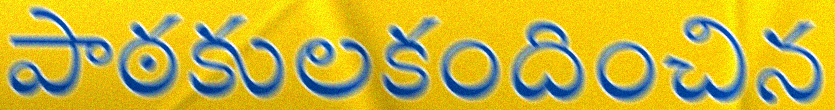
పాఠకులకందించిన